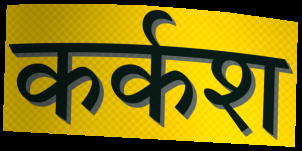
कर्कश